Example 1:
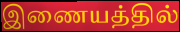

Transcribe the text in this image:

இணையத்தில்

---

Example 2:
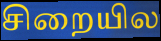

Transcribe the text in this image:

சிறையில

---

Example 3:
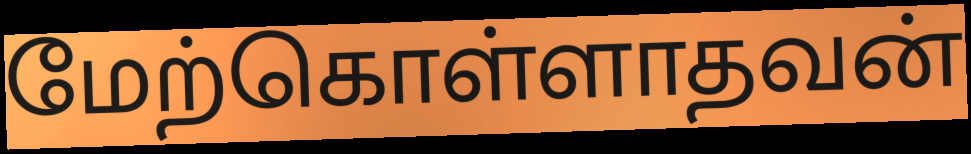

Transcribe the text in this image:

மேற்கொள்ளாதவன்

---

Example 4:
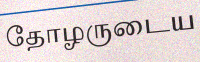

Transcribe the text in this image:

தோழருடைய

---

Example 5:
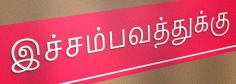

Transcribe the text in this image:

இச்சம்பவத்துக்கு